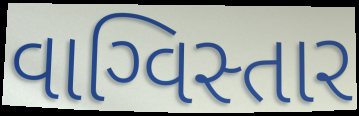
વાગ્વિસ્તાર